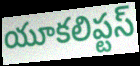
యూకలిప్టస్